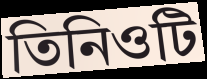
তিনিওটি